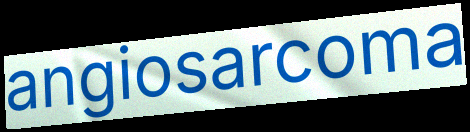
angiosarcoma